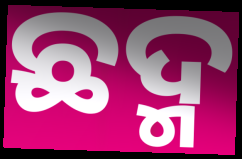
ଛଦ୍ମ